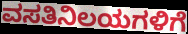
ವಸತಿನಿಲಯಗಳಿಗೆ